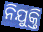
ନିଯୁକ୍ତି